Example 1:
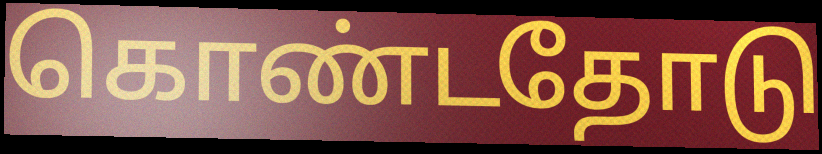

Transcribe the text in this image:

கொண்டதோடு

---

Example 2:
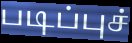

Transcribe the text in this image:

படிப்புச்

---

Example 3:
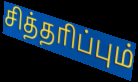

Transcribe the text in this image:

சித்தரிப்பும்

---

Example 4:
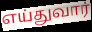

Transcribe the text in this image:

எய்துவார்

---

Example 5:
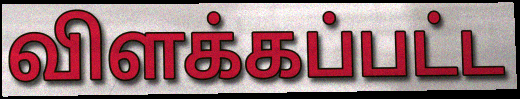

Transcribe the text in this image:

விளக்கப்பட்ட